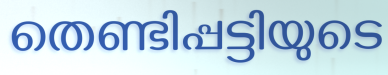
തെണ്ടിപ്പട്ടിയുടെ